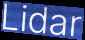
Lidar